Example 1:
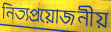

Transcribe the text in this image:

নিত্যপ্রয়োজনীয়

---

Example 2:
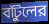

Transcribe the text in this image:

বাঁটুলের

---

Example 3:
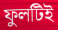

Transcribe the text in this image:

ফুলটিই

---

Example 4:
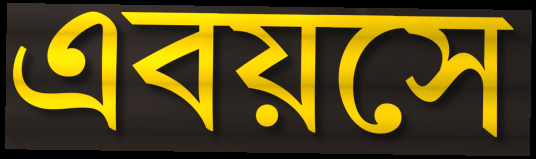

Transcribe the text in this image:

এবয়সে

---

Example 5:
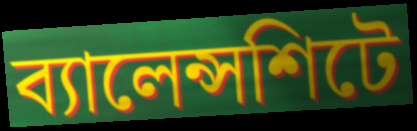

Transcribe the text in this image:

ব্যালেন্সশিটে